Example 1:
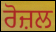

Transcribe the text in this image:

ਰੋਜ਼ਲ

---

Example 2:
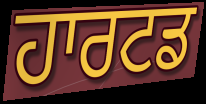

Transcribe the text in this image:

ਹਾਰਟਡ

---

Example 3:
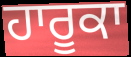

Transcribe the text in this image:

ਹਾਰੂਕਾ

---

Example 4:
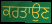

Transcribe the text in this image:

ਕਰਤਾਉਣ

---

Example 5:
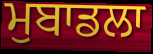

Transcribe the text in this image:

ਮੁਬਾਡਲਾ